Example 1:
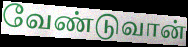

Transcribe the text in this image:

வேண்டுவான்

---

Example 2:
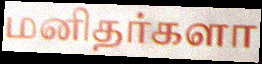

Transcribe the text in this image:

மனிதர்களா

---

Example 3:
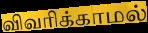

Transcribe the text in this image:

விவரிக்காமல்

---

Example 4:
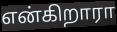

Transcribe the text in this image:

என்கிறாரா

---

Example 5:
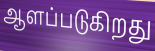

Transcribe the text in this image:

ஆளப்படுகிறது